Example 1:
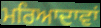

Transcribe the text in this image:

ਮਰਿਆਦਾਵਾਂ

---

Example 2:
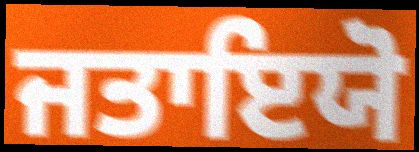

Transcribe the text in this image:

ਜਤਾਇਯੋ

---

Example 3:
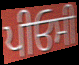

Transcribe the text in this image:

ਪੀਓਸੀ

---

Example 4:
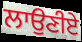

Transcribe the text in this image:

ਲਾਉਣੀਏ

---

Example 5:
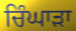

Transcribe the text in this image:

ਚਿੰਘਾੜਾ